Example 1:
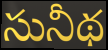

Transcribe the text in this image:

సునీథ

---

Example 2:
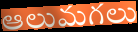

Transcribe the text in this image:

ఆలుమగలు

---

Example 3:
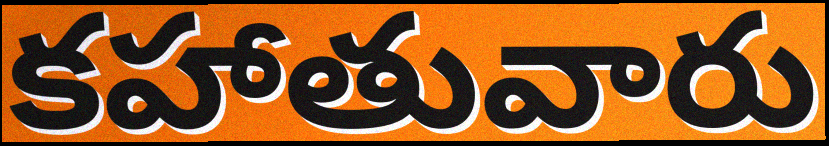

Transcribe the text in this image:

కహాతువారు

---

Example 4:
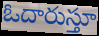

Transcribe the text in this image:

ఓదారుస్తూ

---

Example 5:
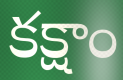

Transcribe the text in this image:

కక్షాం